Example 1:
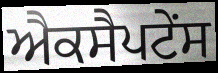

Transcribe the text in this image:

ਐਕਸੈਪਟੇਂਸ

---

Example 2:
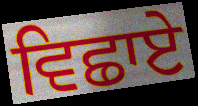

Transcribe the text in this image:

ਵਿਛਾਏ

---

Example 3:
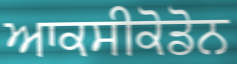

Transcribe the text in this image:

ਆਕਸੀਕੋਡੋਨ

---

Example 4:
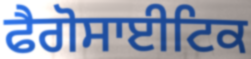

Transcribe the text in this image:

ਫੈਗੋਸਾਈਟਿਕ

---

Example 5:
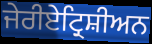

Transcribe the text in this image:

ਜੇਰੀਏਟ੍ਰਿਸ਼ੀਅਨ